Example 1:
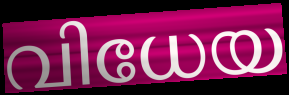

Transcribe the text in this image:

വിധേയ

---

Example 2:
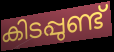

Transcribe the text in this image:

കിടപ്പുണ്ട്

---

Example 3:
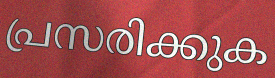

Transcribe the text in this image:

പ്രസരിക്കുക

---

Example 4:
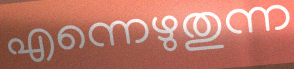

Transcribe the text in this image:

എന്നെഴുതുന്ന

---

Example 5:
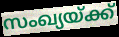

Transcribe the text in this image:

സംഖ്യയ്ക്ക്